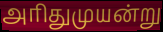
அரிதுமுயன்று